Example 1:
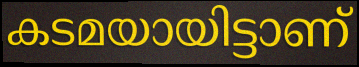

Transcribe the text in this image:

കടമയായിട്ടാണ്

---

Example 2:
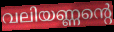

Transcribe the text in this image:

വലിയണ്ണന്റെ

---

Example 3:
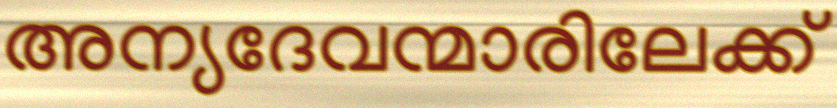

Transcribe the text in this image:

അന്യദേവന്മാരിലേക്ക്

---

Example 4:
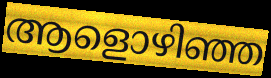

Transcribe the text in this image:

ആളൊഴിഞ്ഞ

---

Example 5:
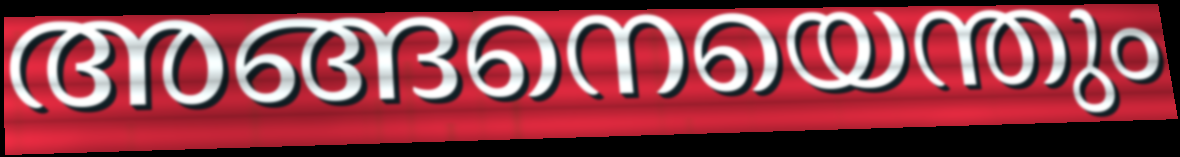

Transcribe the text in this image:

അങ്ങനെയെന്തും